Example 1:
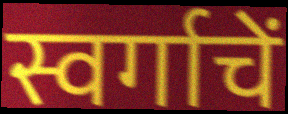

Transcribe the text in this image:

स्वर्गाचें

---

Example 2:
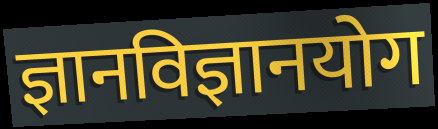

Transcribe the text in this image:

ज्ञानविज्ञानयोग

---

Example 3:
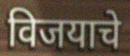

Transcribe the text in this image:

विजयाचे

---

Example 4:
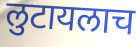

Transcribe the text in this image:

लुटायलाच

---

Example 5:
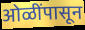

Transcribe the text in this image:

ओळींपासून